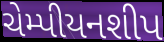
ચેમ્પીયનશીપ